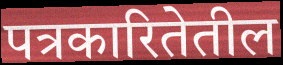
पत्रकारितेतील